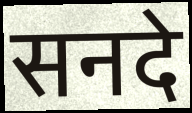
सनदे